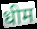
धीम